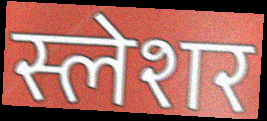
स्लेशर